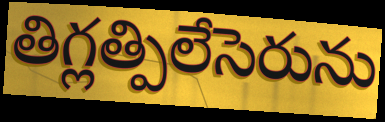
తిగ్లత్పిలేసెరును